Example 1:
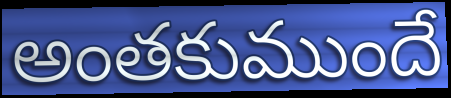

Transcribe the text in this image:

అంతకుముందే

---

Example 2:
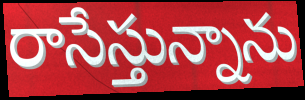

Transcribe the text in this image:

రాసేస్తున్నాను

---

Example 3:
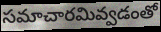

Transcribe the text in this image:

సమాచారమివ్వడంతో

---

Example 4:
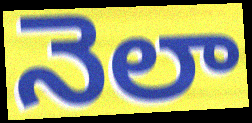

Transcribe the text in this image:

నెలా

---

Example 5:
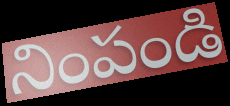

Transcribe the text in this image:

నింపండి